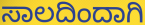
ಸಾಲದಿಂದಾಗಿ